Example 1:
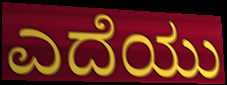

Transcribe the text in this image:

ಎದೆಯು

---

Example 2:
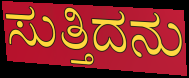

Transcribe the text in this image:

ಸುತ್ತಿದನು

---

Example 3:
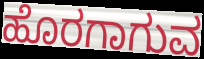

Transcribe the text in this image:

ಹೊರಗಾಗುವ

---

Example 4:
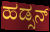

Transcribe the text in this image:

ಹಡ್ಸನ್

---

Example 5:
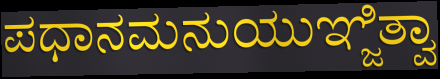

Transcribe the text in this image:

ಪಧಾನಮನುಯುಞ್ಜಿತ್ವಾ